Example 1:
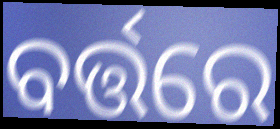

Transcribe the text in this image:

ବର୍ତ୍ତରେ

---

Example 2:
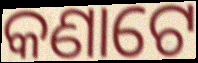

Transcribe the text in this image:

କଣାଟେ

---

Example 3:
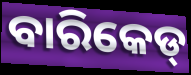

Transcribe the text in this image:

ବାରିକେଡ୍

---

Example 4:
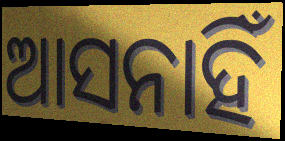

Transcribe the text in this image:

ଆସନାହିଁ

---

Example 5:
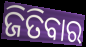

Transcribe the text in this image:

ଜିତିବାର